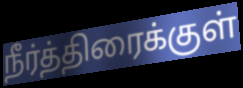
நீர்த்திரைக்குள்